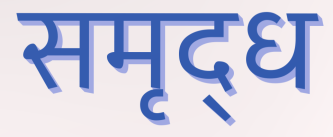
समृद्ध